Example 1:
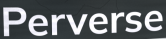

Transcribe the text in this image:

Perverse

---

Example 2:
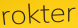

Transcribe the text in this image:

rokter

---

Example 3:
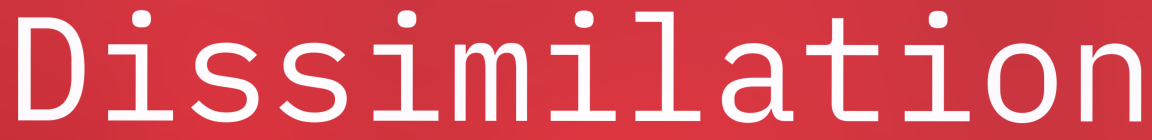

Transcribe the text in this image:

Dissimilation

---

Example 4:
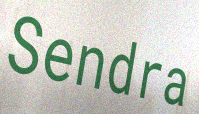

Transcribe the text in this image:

Sendra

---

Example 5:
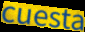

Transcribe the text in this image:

cuesta